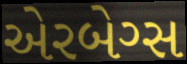
એરબેગ્સ